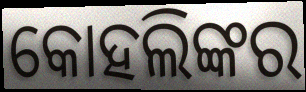
କୋହଲିଙ୍କର